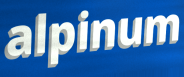
alpinum